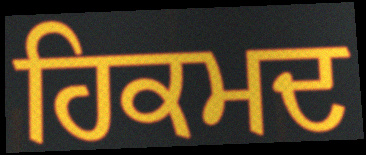
ਹਿਕਮਦ